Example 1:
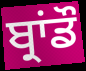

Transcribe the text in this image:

ਬ੍ਰਾਂਡੌ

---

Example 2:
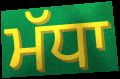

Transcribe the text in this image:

ਮੱਧਾ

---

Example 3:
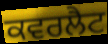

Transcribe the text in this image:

ਕਵਰਲੈਟ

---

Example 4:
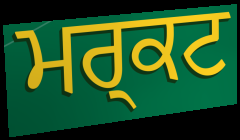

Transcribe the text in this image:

ਮਰ੍ਕਟ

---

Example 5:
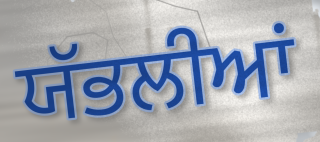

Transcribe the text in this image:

ਯੱਭਲੀਆਂ